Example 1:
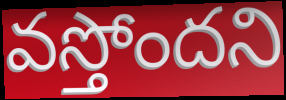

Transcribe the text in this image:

వస్తోందని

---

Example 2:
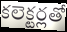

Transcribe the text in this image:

కలెక్టర్లతో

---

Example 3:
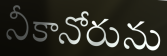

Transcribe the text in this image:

నీకానోరును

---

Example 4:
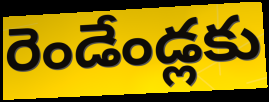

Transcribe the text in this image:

రెండేండ్లకు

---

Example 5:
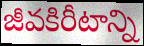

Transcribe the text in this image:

జీవకిరీటాన్ని